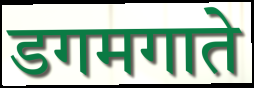
डगमगाते